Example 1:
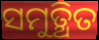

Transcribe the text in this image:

ସମୁତ୍ଥିତ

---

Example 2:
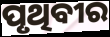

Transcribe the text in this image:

ପୃଥିବୀର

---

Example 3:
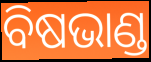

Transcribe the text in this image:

ବିଷଭାଣ୍ଡ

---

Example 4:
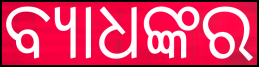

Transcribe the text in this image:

ବ୍ୟାଧଙ୍କର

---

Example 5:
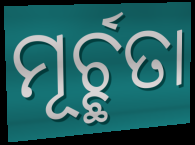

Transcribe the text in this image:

ମୂର୍ଚ୍ଛତା